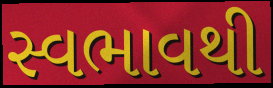
સ્વભાવથી